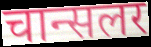
चान्सलर